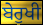
ਬੇਰੁਖੀ